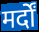
मर्दों